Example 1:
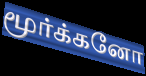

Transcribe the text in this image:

மூர்க்கனோ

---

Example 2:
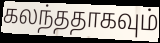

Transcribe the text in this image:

கலந்ததாகவும்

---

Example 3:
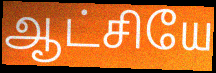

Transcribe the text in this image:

ஆட்சியே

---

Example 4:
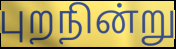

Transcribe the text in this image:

புறநின்று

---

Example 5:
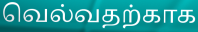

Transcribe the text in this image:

வெல்வதற்காக